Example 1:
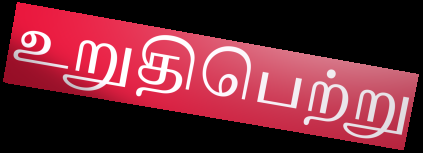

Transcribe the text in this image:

உறுதிபெற்று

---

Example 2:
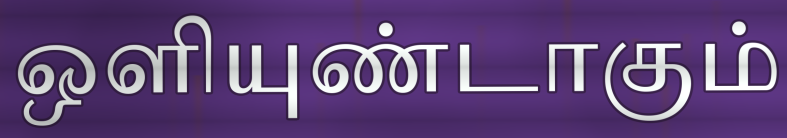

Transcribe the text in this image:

ஒளியுண்டாகும்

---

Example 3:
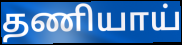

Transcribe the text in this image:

தணியாய்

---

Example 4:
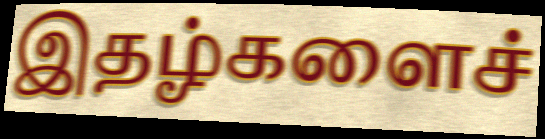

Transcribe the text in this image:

இதழ்களைச்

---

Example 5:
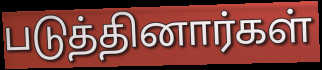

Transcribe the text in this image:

படுத்தினார்கள்